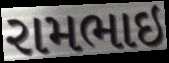
રામભાઇ